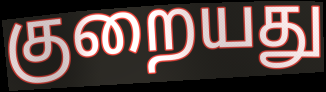
குறையது